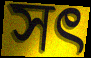
সৎ